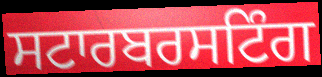
ਸਟਾਰਬਰਸਟਿੰਗ